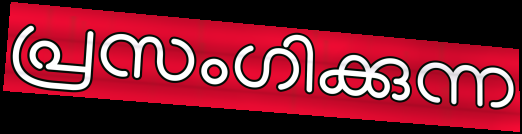
പ്രസംഗിക്കുന്ന